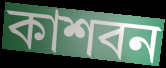
কাশবন